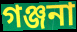
গঞ্জনা